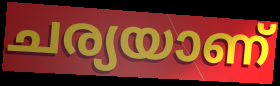
ചര്യയാണ്